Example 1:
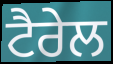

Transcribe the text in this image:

ਟੈਰੇਲ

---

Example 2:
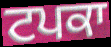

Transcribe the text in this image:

ਟਪਕਾ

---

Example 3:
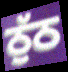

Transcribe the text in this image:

ਠੁੱਠ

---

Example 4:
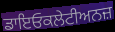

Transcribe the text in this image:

ਡਾਇਓਕਲੇਟੀਅਨਜ਼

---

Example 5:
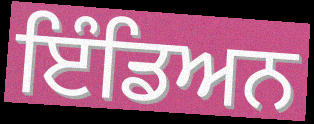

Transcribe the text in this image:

ਇੰਡਿਅਨ